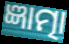
ଜ୍ଞାତ୍ମା